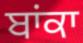
ਬਾਂਕਾ